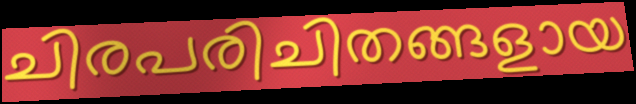
ചിരപരിചിതങ്ങളായ